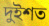
দুইশত